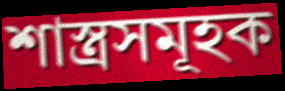
শাস্ত্ৰসমূহক